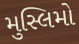
મુસ્લિમો